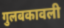
गुलबकावली